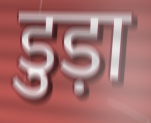
डुड़ा